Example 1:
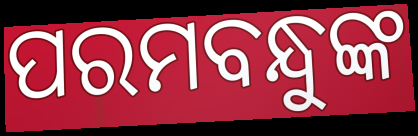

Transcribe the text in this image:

ପରମବନ୍ଧୁଙ୍କ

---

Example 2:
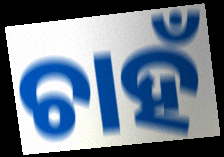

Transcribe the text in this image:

ଚାହଁ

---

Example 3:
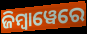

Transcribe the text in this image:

ଜିମ୍ୱାୱେରେ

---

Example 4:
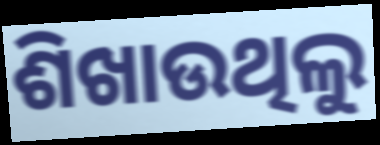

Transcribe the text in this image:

ଶିଖାଉଥିଲୁ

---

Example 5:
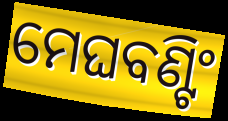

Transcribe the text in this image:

ମେଘବଣ୍ଟିଂ